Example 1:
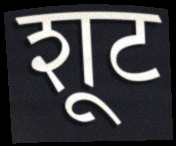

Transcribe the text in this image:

शूट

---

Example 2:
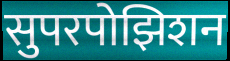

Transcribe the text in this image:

सुपरपोझिशन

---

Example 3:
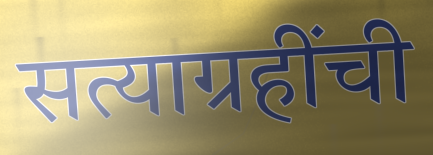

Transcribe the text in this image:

सत्याग्रहींची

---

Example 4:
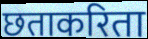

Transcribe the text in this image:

छताकरिता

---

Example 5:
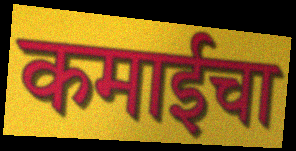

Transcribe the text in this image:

कमाईचा